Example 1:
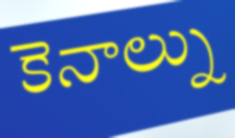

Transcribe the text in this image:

కెనాల్ను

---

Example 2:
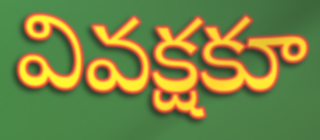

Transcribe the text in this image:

వివక్షకూ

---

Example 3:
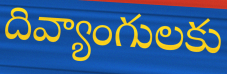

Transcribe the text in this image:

దివ్యాంగులకు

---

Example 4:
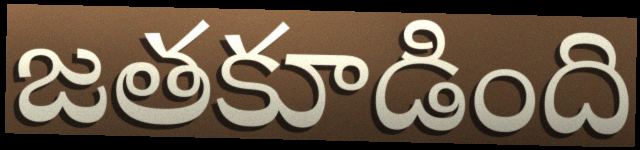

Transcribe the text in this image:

జతకూడింది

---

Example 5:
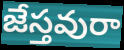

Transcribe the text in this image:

జేస్తవురా